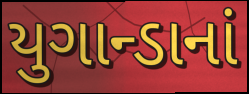
યુગાન્ડાનાં